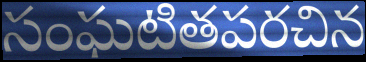
సంఘటితపరచిన